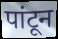
पांटून